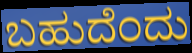
ಬಹುದೆಂದು